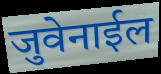
जुवेनाईल